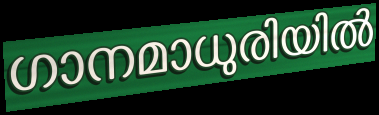
ഗാനമാധുരിയിൽ